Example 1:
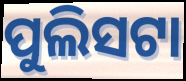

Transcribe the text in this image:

ପୁଲିସଟା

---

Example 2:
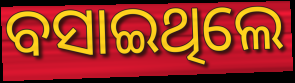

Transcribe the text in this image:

ବସାଇଥିଲେ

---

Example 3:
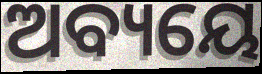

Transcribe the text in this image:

ଅବ୍ୟୟେ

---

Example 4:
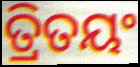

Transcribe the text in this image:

ତ୍ରିତୟଂ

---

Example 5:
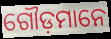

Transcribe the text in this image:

ଗୌଡ଼ମାନେ